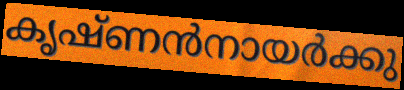
കൃഷ്ണൻനായർക്കു